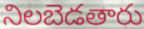
నిలబెడతారు